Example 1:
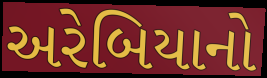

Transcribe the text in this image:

અરેબિયાનો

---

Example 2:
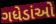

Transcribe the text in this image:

ગધેડાંઓ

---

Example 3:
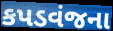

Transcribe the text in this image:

કપડવંજના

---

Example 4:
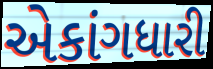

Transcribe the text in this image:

એકાંગધારી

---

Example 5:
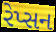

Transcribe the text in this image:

રેપ્સન